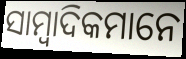
ସାମ୍ବାଦିକମାନେ